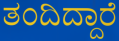
ತಂದಿದ್ದಾರೆ